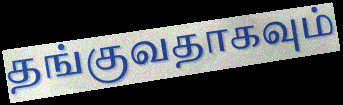
தங்குவதாகவும்